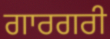
ਗਾਰਗਰੀ